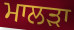
ਮਾਲੜਾ